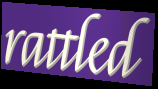
rattled